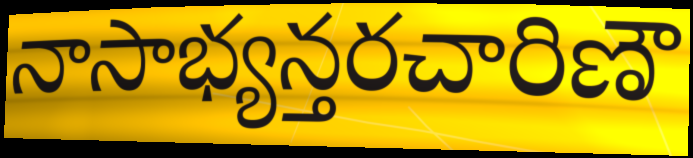
నాసాభ్యన్తరచారిణౌ